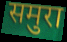
समुरा